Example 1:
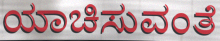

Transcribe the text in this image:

ಯಾಚಿಸುವಂತೆ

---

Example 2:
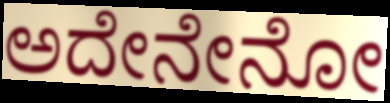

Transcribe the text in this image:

ಅದೇನೇನೋ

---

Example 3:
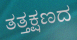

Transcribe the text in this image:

ತತ್ತಕ್ಷಣದ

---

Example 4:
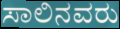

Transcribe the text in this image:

ಸಾಲಿನವರು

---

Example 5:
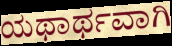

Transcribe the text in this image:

ಯಥಾರ್ಥವಾಗಿ